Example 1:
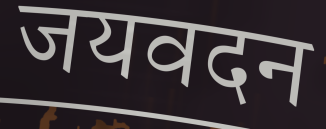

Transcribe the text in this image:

जयवदन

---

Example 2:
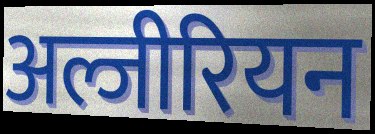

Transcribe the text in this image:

अल्जीरियन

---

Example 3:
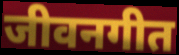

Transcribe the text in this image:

जीवनगीत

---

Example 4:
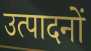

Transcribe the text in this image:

उत्पादनों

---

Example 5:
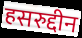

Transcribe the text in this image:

हसरुद्दीन